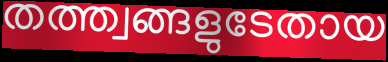
തത്ത്വങ്ങളുടേതായ